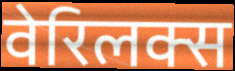
वेरिलक्स